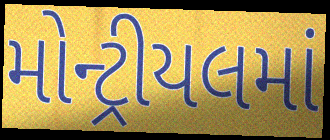
મોન્ટ્રીયલમાં